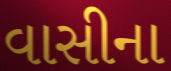
વાસીના